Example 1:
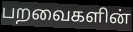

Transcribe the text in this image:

பறவைகளின்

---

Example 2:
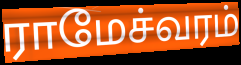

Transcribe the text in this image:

ராமேச்வரம்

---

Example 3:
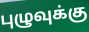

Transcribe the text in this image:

புழுவுக்கு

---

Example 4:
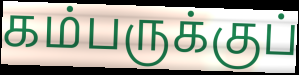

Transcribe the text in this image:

கம்பருக்குப்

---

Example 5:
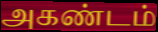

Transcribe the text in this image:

அகண்டம்